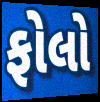
ફોલો